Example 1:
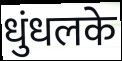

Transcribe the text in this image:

धुंधलके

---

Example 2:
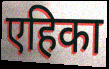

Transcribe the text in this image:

एहिका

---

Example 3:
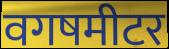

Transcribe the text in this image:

वगषमीटर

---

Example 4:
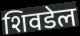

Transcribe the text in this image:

शिवडेल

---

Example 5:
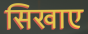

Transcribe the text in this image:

सिखाए